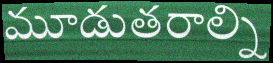
మూడుతరాల్ని